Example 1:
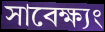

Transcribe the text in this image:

সাবেক্ষ্যং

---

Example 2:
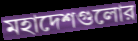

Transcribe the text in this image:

মহাদেশগুলোর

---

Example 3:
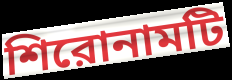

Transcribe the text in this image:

শিরোনামটি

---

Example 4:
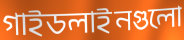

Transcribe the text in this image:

গাইডলাইনগুলো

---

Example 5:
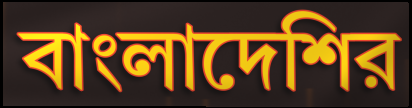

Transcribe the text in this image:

বাংলাদেশির